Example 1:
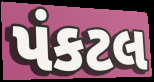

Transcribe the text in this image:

પંકટલ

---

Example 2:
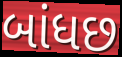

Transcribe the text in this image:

બાંધછ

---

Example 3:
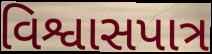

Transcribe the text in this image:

વિશ્વાસપાત્ર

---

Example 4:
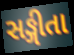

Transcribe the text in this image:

સઙ્ગીતા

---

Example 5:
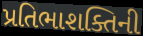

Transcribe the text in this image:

પ્રતિભાશક્તિની